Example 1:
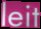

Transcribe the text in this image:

leit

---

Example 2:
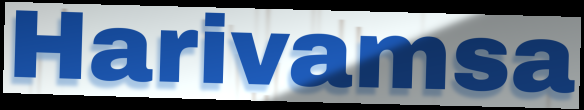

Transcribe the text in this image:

Harivamsa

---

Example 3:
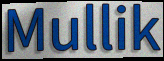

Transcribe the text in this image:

Mullik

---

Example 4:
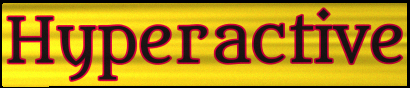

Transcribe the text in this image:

Hyperactive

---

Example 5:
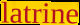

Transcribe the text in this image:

latrine